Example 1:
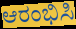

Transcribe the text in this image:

ಆರಂಭಿಸಿ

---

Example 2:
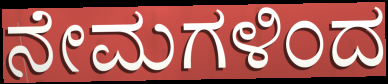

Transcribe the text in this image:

ನೇಮಗಳಿಂದ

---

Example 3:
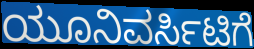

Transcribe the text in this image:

ಯೂನಿವರ್ಸಿಟಿಗೆ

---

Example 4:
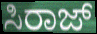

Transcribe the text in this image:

ಸಿರಾಜ್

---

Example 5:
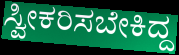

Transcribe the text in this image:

ಸ್ವೀಕರಿಸಬೇಕಿದ್ದ